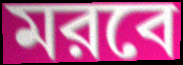
মরবে